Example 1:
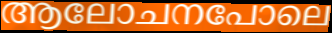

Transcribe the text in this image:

ആലോചനപോലെ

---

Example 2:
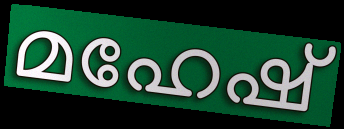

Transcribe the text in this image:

മഹേഷ്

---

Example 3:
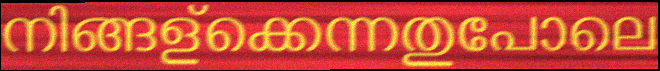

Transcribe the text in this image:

നിങ്ങള്ക്കെന്നതുപോലെ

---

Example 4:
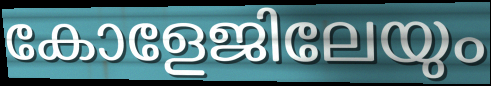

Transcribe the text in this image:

കോളേജിലേയും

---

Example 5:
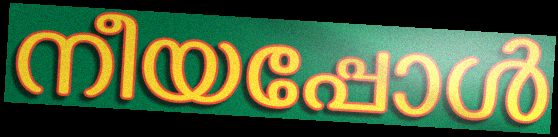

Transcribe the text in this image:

നീയപ്പോൾ